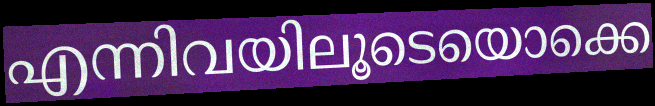
എന്നിവയിലൂടെയൊക്കെ